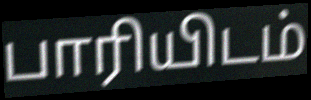
பாரியிடம்